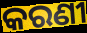
କରଣୀ